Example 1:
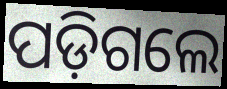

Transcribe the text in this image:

ପଡ଼ିଗଲେ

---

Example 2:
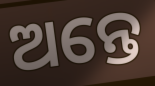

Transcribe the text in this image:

ଅନ୍ତେ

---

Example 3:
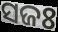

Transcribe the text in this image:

ସଜଃ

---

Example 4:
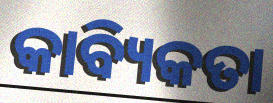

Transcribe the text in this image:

କାବ୍ୟିକତା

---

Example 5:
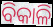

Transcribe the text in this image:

ବିକାଳି